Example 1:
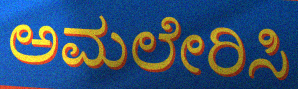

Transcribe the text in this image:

ಅಮಲೇರಿಸಿ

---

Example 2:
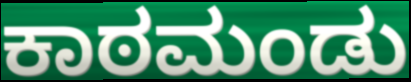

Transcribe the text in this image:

ಕಾಠಮಂಡು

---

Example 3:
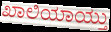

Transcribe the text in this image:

ಖಾಲಿಯಾಯ್ತು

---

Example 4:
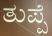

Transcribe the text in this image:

ತುಪ್ಪೆ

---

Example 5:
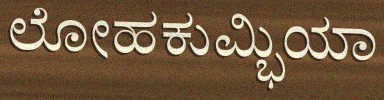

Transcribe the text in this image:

ಲೋಹಕುಮ್ಭಿಯಾ